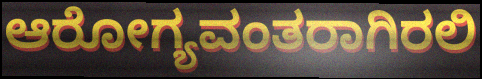
ಆರೋಗ್ಯವಂತರಾಗಿರಲಿ